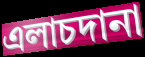
এলাচদানা